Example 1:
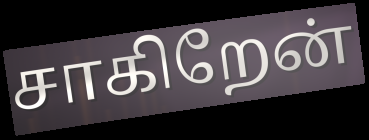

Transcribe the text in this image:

சாகிறேன்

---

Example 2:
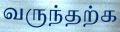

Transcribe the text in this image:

வருந்தற்க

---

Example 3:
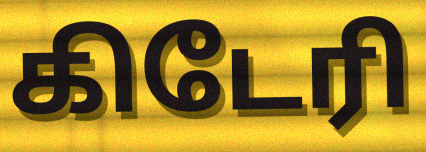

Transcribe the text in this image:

கிடேரி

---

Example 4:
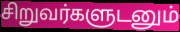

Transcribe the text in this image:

சிறுவர்களுடனும்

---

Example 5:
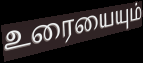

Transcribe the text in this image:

உரையையும்